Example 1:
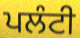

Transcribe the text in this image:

ਪਲੰਟੀ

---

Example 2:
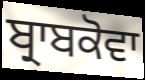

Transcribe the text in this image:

ਬ੍ਰਾਬਕੋਵਾ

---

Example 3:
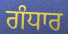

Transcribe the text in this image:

ਗੰਧਾਰ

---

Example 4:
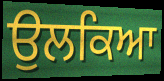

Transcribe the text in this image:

ਉਲਕਿਆ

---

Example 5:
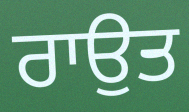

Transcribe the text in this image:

ਰਾਉਤ